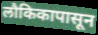
लौकिकापासून